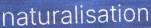
naturalisation